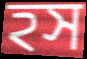
হস